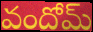
వందోమ్